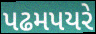
પઢમપયરે